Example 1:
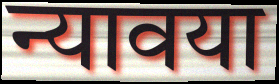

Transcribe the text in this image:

न्यावया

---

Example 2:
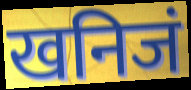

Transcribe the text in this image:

खनिजं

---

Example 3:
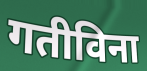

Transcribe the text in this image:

गतीविना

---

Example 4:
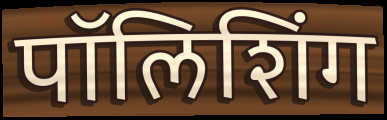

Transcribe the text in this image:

पॉलिशिंग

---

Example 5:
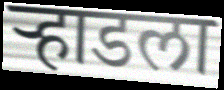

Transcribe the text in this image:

ऱ्हाडला